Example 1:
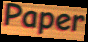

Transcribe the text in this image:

Paper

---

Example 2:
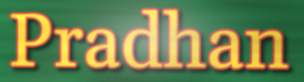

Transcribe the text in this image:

Pradhan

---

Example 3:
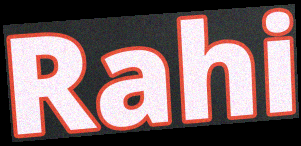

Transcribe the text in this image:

Rahi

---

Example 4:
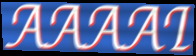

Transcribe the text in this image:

AAAAI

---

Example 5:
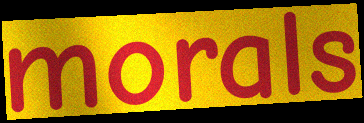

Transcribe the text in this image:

morals